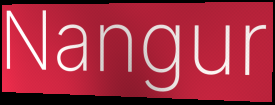
Nangur